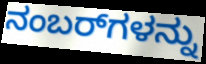
ನಂಬರ್‌ಗಳನ್ನು